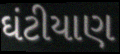
ઘંટીયાણ